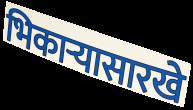
भिकार्‍यासारखे